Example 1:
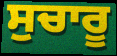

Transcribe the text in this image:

ਸੁਚਾਰੂ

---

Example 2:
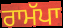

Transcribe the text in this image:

ਰਾਮੱਪਾ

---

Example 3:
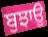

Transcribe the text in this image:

ਬੁਝਾਉ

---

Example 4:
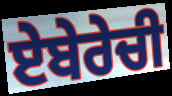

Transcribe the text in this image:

ਏਬੇਰੇਚੀ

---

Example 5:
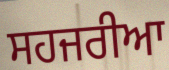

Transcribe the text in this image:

ਸਹਜਰੀਆ